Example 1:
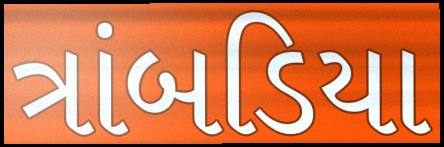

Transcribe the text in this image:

ત્રાંબડિયા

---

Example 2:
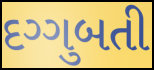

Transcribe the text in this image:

દગ્ગુબતી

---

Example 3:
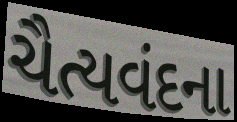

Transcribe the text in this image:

ચૈત્યવંદના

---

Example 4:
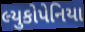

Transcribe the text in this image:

લ્યુકોપેનિયા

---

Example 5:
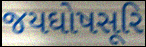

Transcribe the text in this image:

જયઘોષસૂરિ